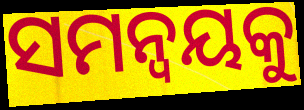
ସମନ୍ବୟକୁ